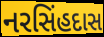
નરસિંહદાસ